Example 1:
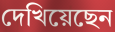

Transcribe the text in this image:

দেখিয়েছেন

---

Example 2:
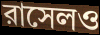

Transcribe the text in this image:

রাসেলও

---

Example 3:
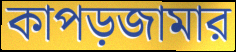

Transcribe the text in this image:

কাপড়জামার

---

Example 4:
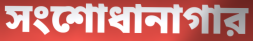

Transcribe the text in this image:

সংশোধানাগার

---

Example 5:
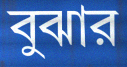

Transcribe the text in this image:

বুঝার